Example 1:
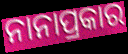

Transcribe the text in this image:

ନାନାପ୍ରକାର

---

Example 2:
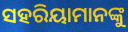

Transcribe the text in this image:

ସହରିୟାମାନଙ୍କୁ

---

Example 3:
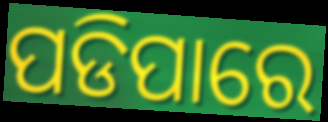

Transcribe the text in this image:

ପଡିପାରେ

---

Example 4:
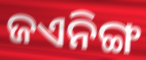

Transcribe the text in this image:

ଜଏନିଙ୍ଗ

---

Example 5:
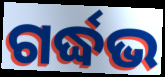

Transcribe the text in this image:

ଗର୍ଦ୍ଧଭ